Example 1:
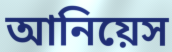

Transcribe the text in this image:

আনিয়েস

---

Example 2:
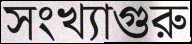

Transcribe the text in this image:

সংখ্যাগুরু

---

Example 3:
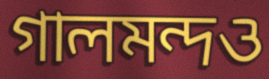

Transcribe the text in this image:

গালমন্দও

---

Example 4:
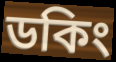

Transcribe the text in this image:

ডকিং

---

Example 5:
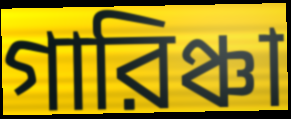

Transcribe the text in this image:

গারিঞ্চা